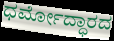
ಧರ್ಮೋದ್ಧಾರದ